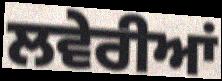
ਲਵੇਰੀਆਂ